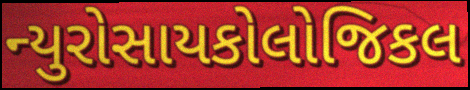
ન્યુરોસાયકોલોજિકલ